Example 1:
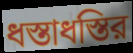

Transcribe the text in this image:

ধস্তাধস্তির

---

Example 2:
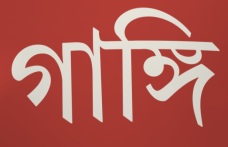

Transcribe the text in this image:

গাঙ্গি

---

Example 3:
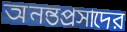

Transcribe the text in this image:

অনন্তপ্রসাদের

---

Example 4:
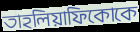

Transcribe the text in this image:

তাহলিয়াফিকোকে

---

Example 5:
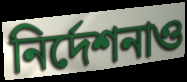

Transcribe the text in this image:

নির্দেশনাও